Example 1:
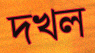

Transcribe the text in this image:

দখল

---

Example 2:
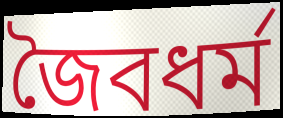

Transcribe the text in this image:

জৈবধর্ম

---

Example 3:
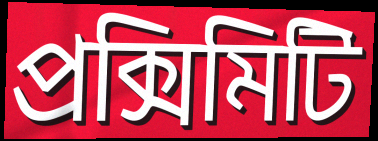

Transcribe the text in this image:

প্রক্সিমিটি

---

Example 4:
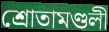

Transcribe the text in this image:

শ্রোতামণ্ডলী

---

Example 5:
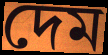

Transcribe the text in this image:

দেম